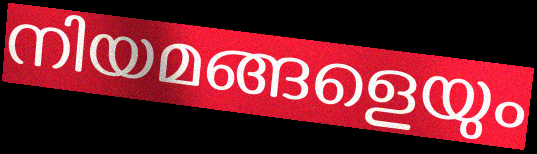
നിയമങ്ങളെയും